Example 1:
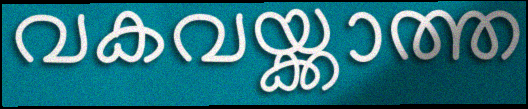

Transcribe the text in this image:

വകവയ്ക്കാത്ത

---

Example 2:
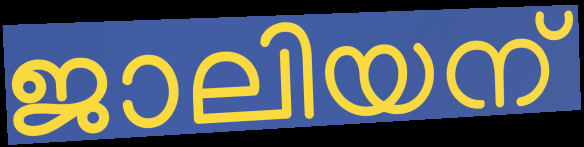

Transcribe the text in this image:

ജാലിയന്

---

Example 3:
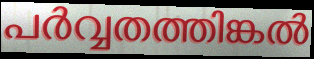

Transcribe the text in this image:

പർവ്വതത്തിങ്കൽ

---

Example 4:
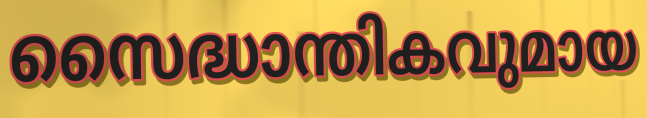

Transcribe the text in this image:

സൈദ്ധാന്തികവുമായ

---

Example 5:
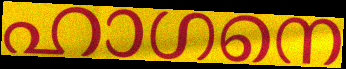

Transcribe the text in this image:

ഹാഗനെ